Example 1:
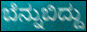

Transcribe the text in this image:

ಬೆನ್ನುಬಿದ್ದು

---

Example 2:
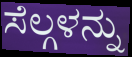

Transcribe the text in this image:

ಸೆಲ್ಗಳನ್ನು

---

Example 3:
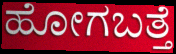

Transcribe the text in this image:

ಹೋಗಬತ್ತೆ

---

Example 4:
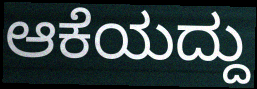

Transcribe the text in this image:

ಆಕೆಯದ್ದು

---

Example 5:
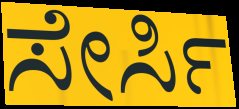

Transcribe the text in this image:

ಸೇರ್ಸಿ